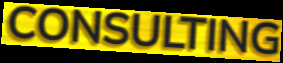
CONSULTING